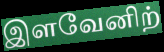
இளவேனிற்